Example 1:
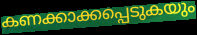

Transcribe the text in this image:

കണക്കാക്കപ്പെടുകയും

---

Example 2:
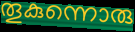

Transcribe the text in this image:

തൂകുന്നൊരു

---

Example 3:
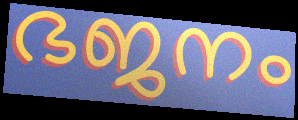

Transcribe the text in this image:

ഭജനം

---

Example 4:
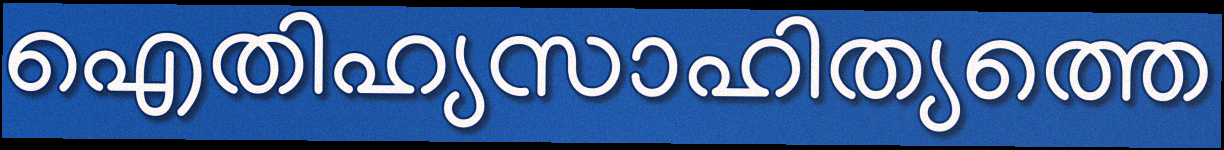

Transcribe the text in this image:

ഐതിഹ്യസാഹിത്യത്തെ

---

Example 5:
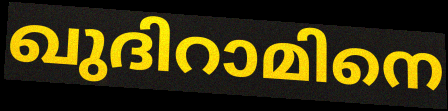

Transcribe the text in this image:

ഖുദിറാമിനെ